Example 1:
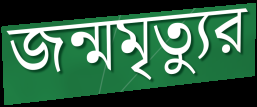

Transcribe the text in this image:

জন্মমৃত্যুর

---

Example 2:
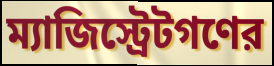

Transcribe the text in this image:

ম্যাজিস্ট্রেটগণের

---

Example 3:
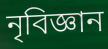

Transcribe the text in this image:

নৃবিজ্ঞান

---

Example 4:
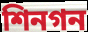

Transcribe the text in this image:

শিনগন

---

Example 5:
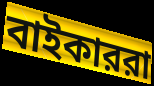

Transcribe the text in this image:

বাইকাররা